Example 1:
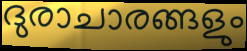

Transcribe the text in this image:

ദുരാചാരങ്ങളും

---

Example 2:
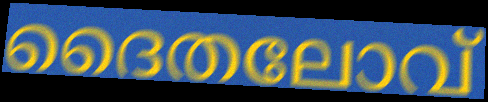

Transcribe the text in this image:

ദൈതലോവ്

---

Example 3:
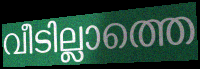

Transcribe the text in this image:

വീടില്ലാത്തെ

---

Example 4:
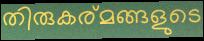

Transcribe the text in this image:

തിരുകര്മങ്ങളുടെ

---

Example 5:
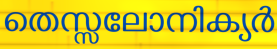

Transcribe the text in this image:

തെസ്സലോനിക്യർ